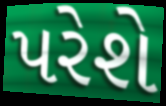
પરેશે